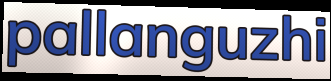
pallanguzhi